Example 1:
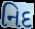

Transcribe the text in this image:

નિદ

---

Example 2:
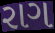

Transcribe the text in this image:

રાગ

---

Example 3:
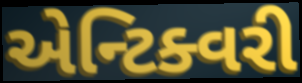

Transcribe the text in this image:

એન્ટિક્વરી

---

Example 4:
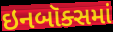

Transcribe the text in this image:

ઇનબૉક્સમાં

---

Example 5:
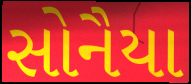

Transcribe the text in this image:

સોનૈયા